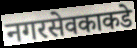
नगरसेवकाकडे